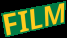
FILM